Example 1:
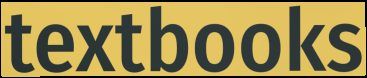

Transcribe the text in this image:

textbooks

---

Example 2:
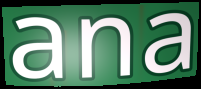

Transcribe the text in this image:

ana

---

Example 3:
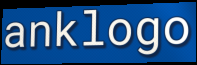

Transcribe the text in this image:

anklogo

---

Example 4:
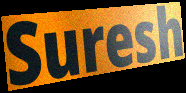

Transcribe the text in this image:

Suresh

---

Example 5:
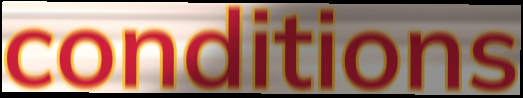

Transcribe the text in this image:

conditions